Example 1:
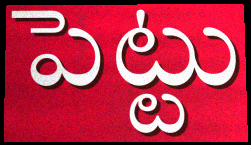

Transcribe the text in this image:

పెట్టు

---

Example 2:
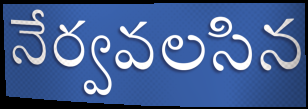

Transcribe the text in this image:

నేర్వవలసిన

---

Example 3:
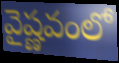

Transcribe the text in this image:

వైష్ణవంలో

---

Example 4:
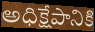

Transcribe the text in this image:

అధిక్షేపానికి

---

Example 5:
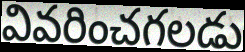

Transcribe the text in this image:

వివరించగలడు